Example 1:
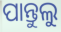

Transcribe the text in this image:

ପାନ୍ତୁଲୁ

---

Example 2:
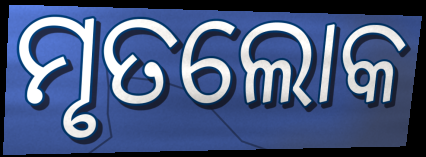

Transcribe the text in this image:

ମୃତଲୋକ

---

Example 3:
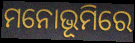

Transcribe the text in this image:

ମନୋଭୂମିରେ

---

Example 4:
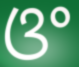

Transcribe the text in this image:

ଓଂ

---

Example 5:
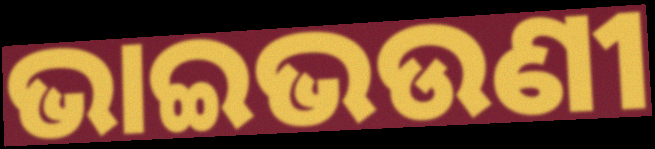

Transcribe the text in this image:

ଭାଇଭଉଣୀ